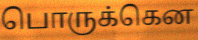
பொருக்கென